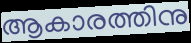
ആകാരത്തിനു